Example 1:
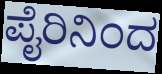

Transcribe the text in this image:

ಪೈರಿನಿಂದ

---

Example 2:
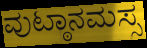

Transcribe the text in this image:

ವುಟ್ಠಾನಮಸ್ಸ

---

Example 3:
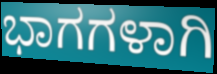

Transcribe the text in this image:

ಭಾಗಗಳಾಗಿ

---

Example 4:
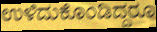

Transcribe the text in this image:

ಉಳಿದುಕೊಂಡಿದ್ದರೂ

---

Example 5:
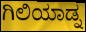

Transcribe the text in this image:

ಗಿಲಿಯಾಡ್ನ